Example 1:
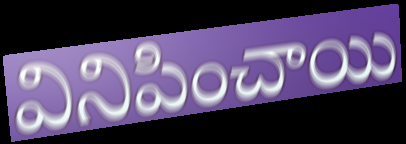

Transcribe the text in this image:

వినిపించాయి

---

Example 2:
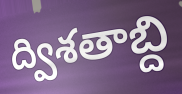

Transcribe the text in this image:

ద్విశతాబ్ది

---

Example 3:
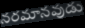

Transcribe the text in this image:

నరమానవుడు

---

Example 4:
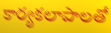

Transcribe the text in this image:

కార్యకలాపాలతో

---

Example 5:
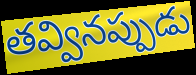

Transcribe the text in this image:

తవ్వినప్పుడు